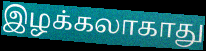
இழக்கலாகாது